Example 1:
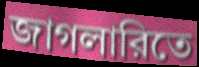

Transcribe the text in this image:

জাগলারিতে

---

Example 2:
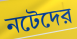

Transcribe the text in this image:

নটেদের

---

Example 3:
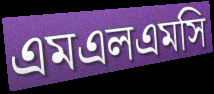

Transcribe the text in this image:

এমএলএমসি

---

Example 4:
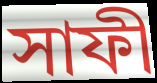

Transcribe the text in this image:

সাফী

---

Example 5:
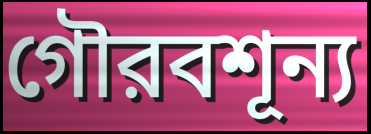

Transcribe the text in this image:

গৌরবশূন্য